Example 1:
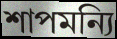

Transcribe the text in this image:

শাপমন্যি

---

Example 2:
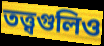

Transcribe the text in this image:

তত্ত্বগুলিও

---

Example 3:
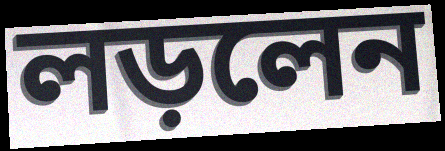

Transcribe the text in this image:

লড়লেন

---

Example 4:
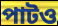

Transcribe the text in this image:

পাটও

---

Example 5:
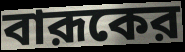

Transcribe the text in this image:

বারূকের